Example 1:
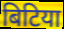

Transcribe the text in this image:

बिटिया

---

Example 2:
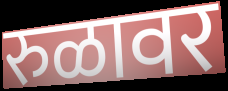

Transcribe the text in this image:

रुळावर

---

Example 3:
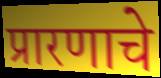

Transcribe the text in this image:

प्रारणाचे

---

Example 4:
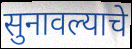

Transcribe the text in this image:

सुनावल्याचे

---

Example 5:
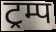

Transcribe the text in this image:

ट्रम्‍प